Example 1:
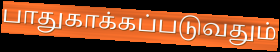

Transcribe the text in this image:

பாதுகாக்கப்படுவதும்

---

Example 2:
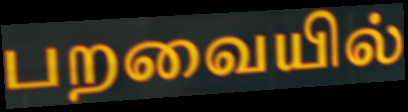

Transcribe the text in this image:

பறவையில்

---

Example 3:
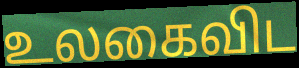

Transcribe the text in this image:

உலகைவிட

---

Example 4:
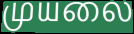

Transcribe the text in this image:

முயலை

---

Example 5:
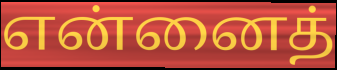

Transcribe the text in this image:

என்னைத்